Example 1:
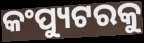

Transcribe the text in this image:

କଂପ୍ୟୁଟରକୁ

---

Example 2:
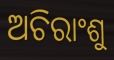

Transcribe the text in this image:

ଅଚିରାଂଶୁ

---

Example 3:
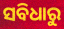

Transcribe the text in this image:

ସବିଧାରୁ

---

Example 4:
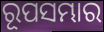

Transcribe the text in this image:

ରୂପସମ୍ଭାର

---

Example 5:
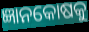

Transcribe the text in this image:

ଜ୍ଞାନକୋଷକୁ